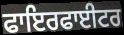
ਫਾਇਰਫਾਈਟਰ